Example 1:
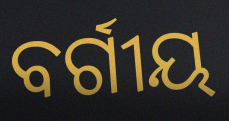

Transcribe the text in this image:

ବର୍ଗୀୟ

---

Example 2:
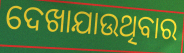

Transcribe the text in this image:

ଦେଖାଯାଉଥିବାର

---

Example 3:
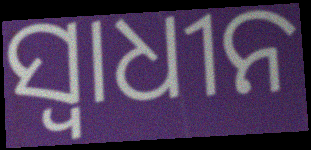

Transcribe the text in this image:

ସ୍ବାଧୀନ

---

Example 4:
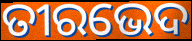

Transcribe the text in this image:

ତୀରଭେଦ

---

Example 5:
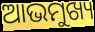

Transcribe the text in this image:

ଆଭମୁଖ୍ୟ